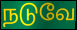
நடுவே